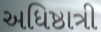
અધિષ્ઠાત્રી